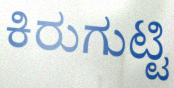
ಕಿರುಗುಟ್ಟಿ